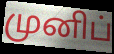
முனிப்